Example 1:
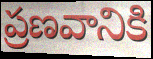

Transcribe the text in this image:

ప్రణవానికి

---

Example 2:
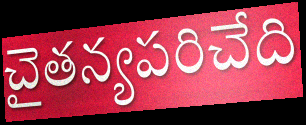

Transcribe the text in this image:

చైతన్యపరిచేది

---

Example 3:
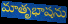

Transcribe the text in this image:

మాతృభాషను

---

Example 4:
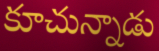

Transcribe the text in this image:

కూచున్నాడు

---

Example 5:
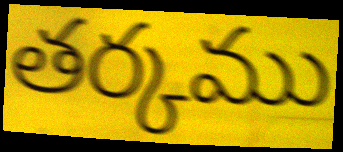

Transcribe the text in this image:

తర్కము